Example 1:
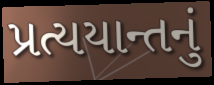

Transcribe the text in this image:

પ્રત્યયાન્તનું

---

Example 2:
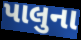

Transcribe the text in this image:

પાલુના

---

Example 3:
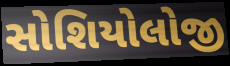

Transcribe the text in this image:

સોશિયોલોજી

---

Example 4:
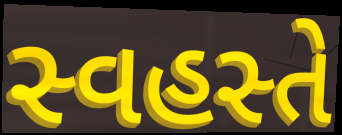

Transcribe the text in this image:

સ્વહસ્તે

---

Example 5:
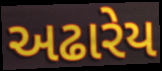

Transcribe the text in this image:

અઢારેય